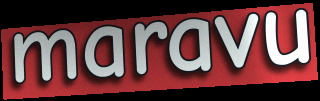
maravu